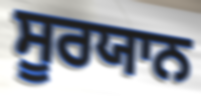
ਸੂਰਯਾਨ